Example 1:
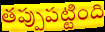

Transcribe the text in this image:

తప్పుపట్టింది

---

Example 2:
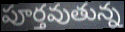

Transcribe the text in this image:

పూర్తవుతున్న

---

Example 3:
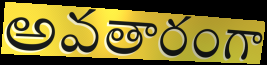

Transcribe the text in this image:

అవతారంగా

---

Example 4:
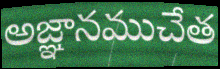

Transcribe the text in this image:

అజ్ఞానముచేత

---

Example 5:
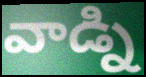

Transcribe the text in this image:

వాడ్ని